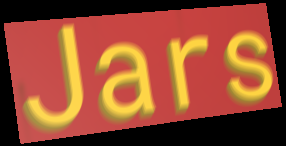
Jars